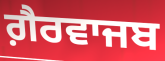
ਗ਼ੈਰਵਾਜਬ